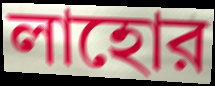
লাহোর